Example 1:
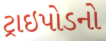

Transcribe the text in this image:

ટ્રાઇપોડનો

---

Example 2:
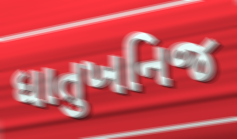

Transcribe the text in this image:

ધાતુખનિજ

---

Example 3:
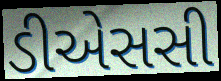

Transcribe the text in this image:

ડીએસસી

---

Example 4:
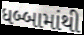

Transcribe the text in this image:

ધબ્બામાંથી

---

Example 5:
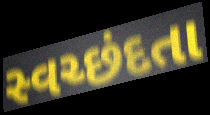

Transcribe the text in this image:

સ્વચ્છંદતા